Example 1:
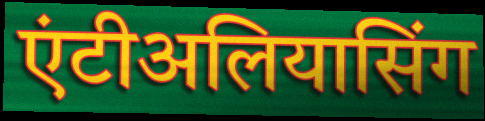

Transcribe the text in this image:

एंटीअलियासिंग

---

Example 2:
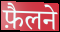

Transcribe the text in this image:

फ़ैलने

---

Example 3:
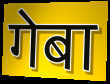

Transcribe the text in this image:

गेबा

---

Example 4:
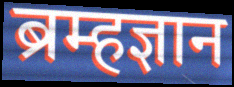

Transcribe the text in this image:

ब्रम्हज्ञान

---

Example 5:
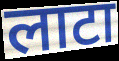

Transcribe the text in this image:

लाटा